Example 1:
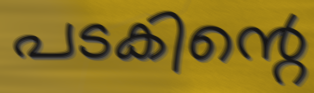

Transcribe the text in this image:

പടകിന്റെ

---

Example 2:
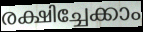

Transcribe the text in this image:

രക്ഷിച്ചേക്കാം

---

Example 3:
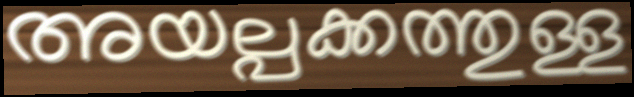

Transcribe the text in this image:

അയല്പക്കത്തുള്ള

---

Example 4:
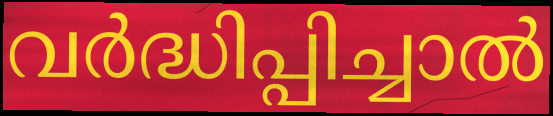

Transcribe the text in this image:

വർദ്ധിപ്പിച്ചാൽ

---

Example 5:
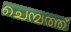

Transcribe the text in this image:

ചെമ്പത്ത്